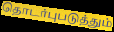
தொடர்புபடுத்தும்